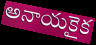
అనాయకైక